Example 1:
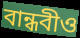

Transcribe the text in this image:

বান্ধবীও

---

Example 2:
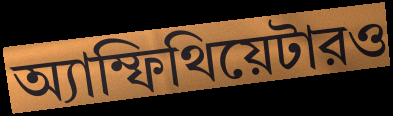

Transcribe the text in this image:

অ্যাম্ফিথিয়েটারও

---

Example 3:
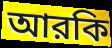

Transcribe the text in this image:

আরকি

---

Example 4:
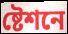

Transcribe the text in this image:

ষ্টেশনে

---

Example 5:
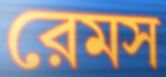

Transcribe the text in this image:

রেমস